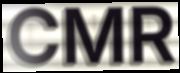
CMR